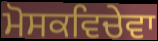
ਮੋਸਕਵਿਚੇਵਾ